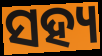
ସହ୍ୟ